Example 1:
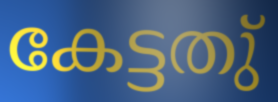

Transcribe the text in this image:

കേട്ടതു്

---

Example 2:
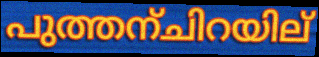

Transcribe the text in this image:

പുത്തന്ചിറയില്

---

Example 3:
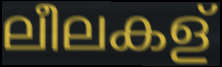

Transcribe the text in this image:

ലീലകള്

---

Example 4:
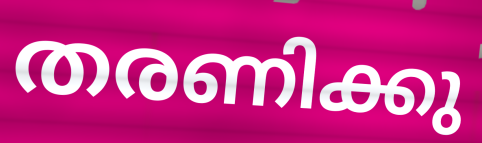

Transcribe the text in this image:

തരണിക്കു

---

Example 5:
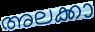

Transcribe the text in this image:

അലക്കാ